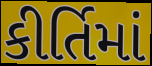
કીર્તિમાં